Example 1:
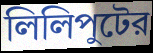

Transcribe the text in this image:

লিলিপুটের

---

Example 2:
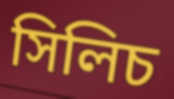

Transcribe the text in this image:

সিলিচ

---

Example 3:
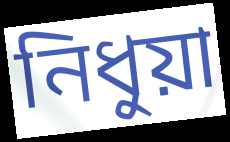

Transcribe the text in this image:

নিধুয়া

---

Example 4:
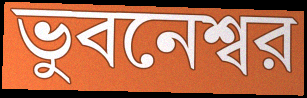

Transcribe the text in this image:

ভুবনেশ্বর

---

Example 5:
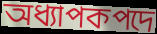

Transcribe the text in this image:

অধ্যাপকপদে